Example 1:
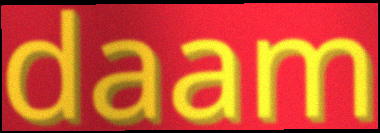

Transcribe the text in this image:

daam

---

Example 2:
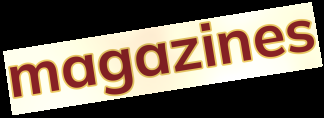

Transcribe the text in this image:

magazines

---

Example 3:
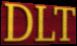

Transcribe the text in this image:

DLT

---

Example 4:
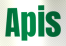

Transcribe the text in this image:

Apis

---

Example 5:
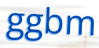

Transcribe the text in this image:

ggbm